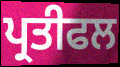
ਪ੍ਰਤੀਫਲ